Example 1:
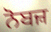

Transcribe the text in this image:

ਨੋਬਜ਼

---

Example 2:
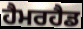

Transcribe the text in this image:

ਹੈਮਰਹੈਡ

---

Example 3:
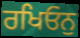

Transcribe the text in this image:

ਰਖਿਓਨੁ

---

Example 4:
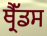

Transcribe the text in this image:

ਥ੍ਰੈੱਡਸ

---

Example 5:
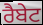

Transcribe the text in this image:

ਰੈਬੇਟ